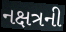
નક્ષત્રની